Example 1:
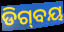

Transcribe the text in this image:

ଡିଗ୍‌ବୟ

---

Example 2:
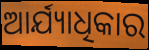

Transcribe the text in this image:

ଆର୍ଯ୍ୟାଧିକାର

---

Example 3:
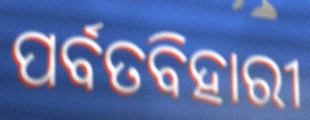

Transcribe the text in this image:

ପର୍ବତବିହାରୀ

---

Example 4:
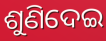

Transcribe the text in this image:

ଶୁଣିଦେଇ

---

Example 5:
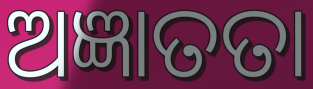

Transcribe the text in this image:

ଅଜ୍ଞାତତା